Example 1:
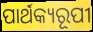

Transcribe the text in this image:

ପାର୍ଥକ୍ୟରୂପୀ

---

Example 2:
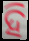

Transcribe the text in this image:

ହି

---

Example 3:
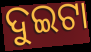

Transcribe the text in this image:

ଦୁଇଟା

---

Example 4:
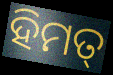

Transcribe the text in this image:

ହିମତ୍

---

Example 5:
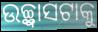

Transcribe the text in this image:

ଉଚ୍ଛ୍ୱାସଟାକୁ